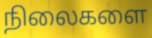
நிலைகளை